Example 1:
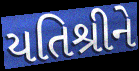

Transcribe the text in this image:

યતિશ્રીને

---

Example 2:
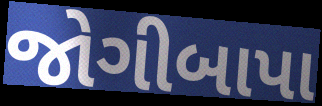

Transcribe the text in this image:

જોગીબાપા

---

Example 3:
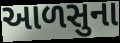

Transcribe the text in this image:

આળસુના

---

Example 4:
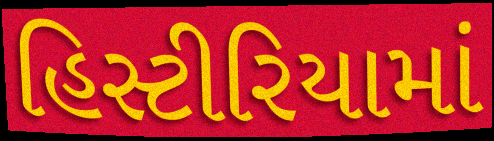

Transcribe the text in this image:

હિસ્ટીરિયામાં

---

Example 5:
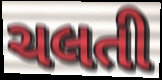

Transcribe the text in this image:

ચલતી